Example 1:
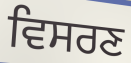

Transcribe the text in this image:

ਵਿਸਰਣ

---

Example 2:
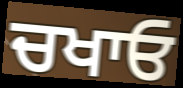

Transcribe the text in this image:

ਚਖਾਓ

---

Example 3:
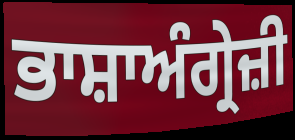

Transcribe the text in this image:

ਭਾਸ਼ਾਅੰਗ੍ਰੇਜ਼ੀ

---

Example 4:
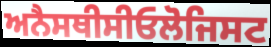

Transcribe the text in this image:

ਅਨੈਸਥੀਸੀਓਲੋਜਿਸਟ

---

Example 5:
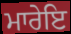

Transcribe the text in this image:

ਮਾਰੇਇ